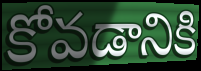
కోవడానికి